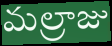
మల్రాజు